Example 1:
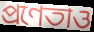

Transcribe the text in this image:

প্রণেতাও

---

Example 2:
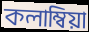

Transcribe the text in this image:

কলাম্বিয়া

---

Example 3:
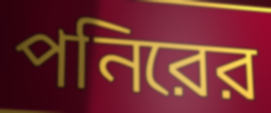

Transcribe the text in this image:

পনিরের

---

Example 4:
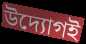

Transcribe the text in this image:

উদ্যোগই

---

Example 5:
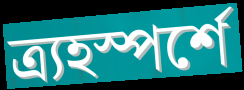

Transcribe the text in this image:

ত্র্যহস্পর্শে